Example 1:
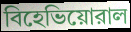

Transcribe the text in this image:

বিহেভিয়োরাল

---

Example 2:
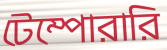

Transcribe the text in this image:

টেম্পোরারি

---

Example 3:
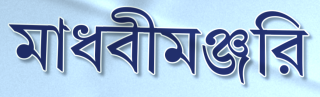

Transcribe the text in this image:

মাধবীমঞ্জরি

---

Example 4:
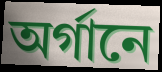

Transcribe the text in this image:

অর্গানে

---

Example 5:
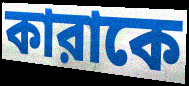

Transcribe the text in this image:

কারাকে